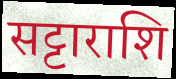
सट्टाराशि